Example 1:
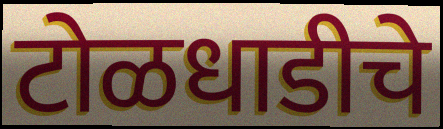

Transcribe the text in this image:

टोळधाडीचे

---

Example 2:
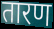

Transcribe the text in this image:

तारण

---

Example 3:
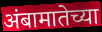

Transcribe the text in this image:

अंबामातेच्या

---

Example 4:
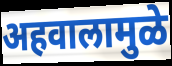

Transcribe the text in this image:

अहवालामुळे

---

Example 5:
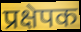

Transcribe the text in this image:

प्रक्षेपक